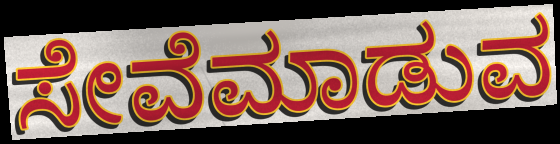
ಸೇವೆಮಾಡುವ